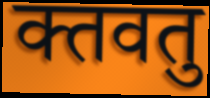
क्तवतु